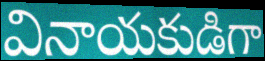
వినాయకుడిగా